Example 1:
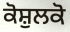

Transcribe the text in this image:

ਕੋਸ਼ੁਲਕੋ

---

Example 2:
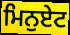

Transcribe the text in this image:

ਮਿਨੁਏਟ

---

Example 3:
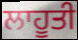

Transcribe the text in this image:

ਲਾਹੂਤੀ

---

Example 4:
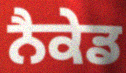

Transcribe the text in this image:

ਨੈਕੇਡ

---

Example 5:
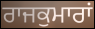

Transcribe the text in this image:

ਰਾਜਕੁਮਾਰਾਂ